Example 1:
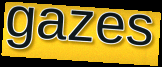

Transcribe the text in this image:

gazes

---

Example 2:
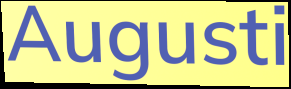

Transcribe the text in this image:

Augusti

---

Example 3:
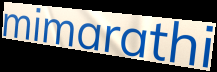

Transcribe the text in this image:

mimarathi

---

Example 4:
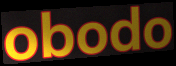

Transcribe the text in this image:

obodo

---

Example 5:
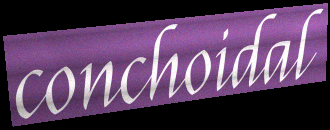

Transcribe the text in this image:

conchoidal